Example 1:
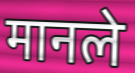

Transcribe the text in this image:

मानले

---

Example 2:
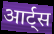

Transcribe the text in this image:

आर्ट्स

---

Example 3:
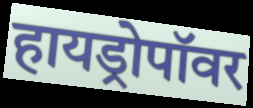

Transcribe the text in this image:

हायड्रोपॉवर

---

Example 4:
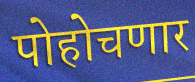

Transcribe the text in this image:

पोहोचणार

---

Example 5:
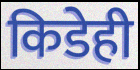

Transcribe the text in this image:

किडेही